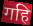
गहि